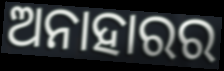
ଅନାହାରର